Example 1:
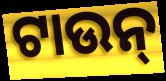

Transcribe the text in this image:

ଟାଉନ୍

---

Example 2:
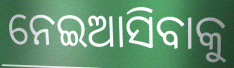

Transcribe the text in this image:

ନେଇଆସିବାକୁ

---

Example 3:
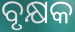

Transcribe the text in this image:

ବୃକ୍ଷକ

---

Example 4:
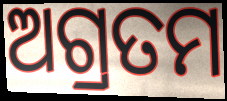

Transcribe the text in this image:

ଅଗ୍ରତମ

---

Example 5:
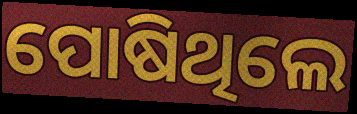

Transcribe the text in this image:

ପୋଷିଥିଲେ